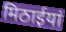
मिठाईयां